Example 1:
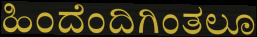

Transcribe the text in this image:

ಹಿಂದೆಂದಿಗಿಂತಲೂ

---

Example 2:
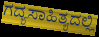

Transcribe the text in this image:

ಗದ್ಯಸಾಹಿತ್ಯದಲ್ಲಿ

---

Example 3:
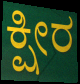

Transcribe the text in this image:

ಕ್ಷೀರ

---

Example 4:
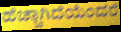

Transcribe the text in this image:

ಹೆಚ್ಚಾಗಿದೆಯೆಂದರೆ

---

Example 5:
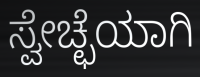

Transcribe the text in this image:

ಸ್ವೇಚ್ಛೆಯಾಗಿ